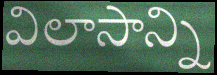
విలాసాన్ని